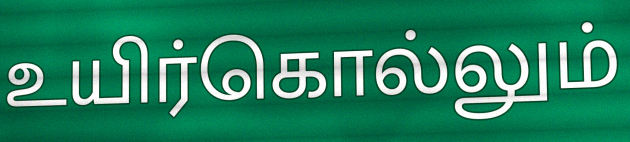
உயிர்கொல்லும்